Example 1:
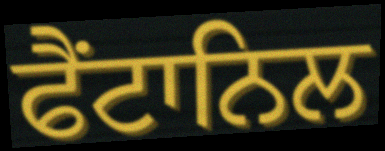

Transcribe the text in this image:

ਫੈਂਟਾਨਿਲ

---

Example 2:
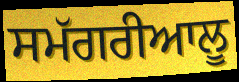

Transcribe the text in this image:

ਸਮੱਗਰੀਆਲੂ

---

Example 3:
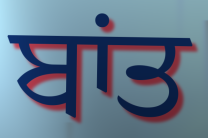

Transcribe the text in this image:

ਬਾਂਤ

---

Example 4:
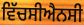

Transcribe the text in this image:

ਵਿੱਚਸੀਐਨਸੀ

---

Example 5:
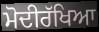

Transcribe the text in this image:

ਮੋਦੀਰੱਖਿਆ